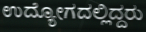
ಉದ್ಯೋಗದಲ್ಲಿದ್ದರು